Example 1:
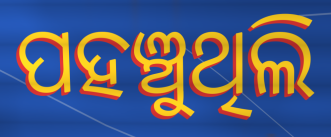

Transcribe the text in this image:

ପହଞ୍ଚୁଥିଲି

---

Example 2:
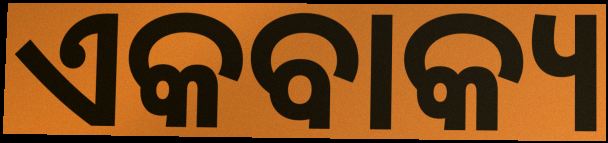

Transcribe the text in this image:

ଏକବାକ୍ୟ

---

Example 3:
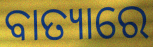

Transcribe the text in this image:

ବାତ୍ୟାରେ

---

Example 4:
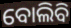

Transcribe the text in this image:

ବୋଲିବି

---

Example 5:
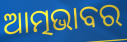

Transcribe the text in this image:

ଆତ୍ମଭାବର